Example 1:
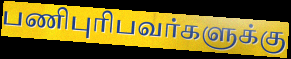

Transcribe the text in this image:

பணிபுரிபவர்களுக்கு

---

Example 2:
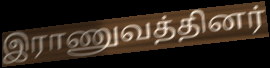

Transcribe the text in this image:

இராணுவத்தினர்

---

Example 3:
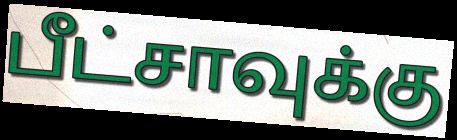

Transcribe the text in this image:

பீட்சாவுக்கு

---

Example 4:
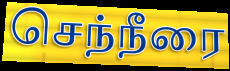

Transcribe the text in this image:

செந்நீரை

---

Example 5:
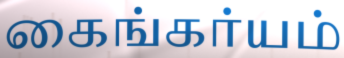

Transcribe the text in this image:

கைங்கர்யம்